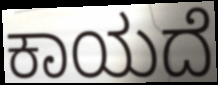
ಕಾಯದೆ